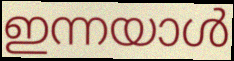
ഇന്നയാൾ